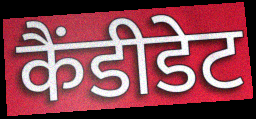
कैंडीडेट